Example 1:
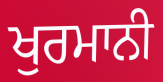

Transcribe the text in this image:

ਖੁਰਮਾਨੀ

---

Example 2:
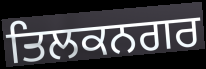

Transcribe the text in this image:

ਤਿਲਕਨਗਰ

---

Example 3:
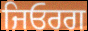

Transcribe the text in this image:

ਜਿਓਰਗ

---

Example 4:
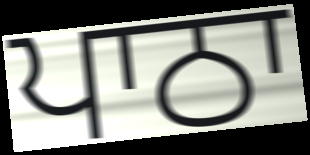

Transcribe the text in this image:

ਪਾਠਾ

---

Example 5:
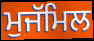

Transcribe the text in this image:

ਮੁਜੱਮਿਲ